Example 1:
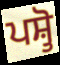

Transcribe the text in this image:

ਪਸ਼੍ਤੋ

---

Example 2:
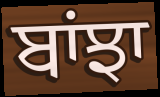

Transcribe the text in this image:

ਬਾਂਝਾ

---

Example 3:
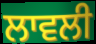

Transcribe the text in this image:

ਲਾਵਲੀ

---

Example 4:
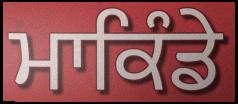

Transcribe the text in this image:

ਮਾਕਿੰਡੇ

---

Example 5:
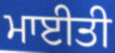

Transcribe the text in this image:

ਮਾਈਤੀ